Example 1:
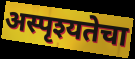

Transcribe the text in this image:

अस्पृश्यतेचा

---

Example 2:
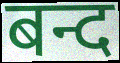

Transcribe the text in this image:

बन्द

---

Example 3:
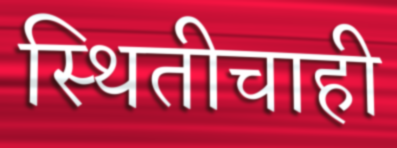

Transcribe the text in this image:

स्थितीचाही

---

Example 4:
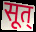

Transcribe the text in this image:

सूत्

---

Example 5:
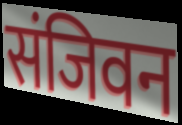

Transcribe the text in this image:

संजिवन